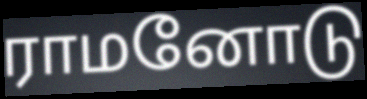
ராமனோடு